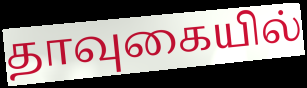
தாவுகையில்